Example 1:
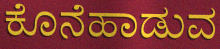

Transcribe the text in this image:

ಕೊನೆಹಾಡುವ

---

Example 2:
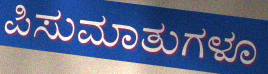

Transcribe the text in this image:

ಪಿಸುಮಾತುಗಳೂ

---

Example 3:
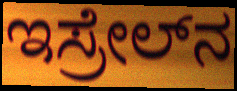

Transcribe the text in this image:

ಇಸ್ರೇಲ್‍ನ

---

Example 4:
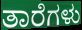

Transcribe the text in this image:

ತಾರೆಗಳು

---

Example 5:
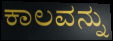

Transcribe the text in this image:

ಕಾಲವನ್ನು